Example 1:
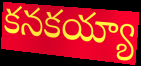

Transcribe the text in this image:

కనకయ్యా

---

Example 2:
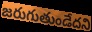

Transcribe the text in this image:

జరుగుతుండేదని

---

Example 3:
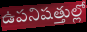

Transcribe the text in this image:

ఉపనిషత్తుల్లో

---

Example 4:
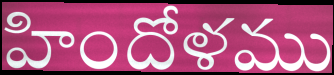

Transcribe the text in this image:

హిందోళము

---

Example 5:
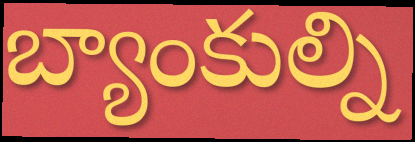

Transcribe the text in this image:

బ్యాంకుల్ని